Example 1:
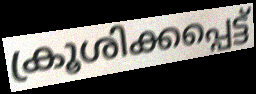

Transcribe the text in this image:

ക്രൂശിക്കപ്പെട്ട്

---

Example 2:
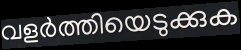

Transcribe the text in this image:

വളർത്തിയെടുക്കുക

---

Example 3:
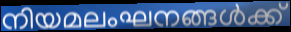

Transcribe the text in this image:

നിയമലംഘനങ്ങൾക്ക്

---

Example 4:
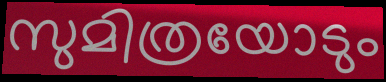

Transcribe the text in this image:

സുമിത്രയോടും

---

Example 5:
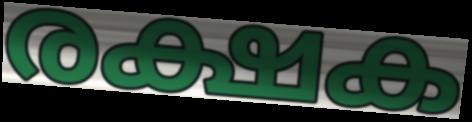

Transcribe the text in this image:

രക്ഷക